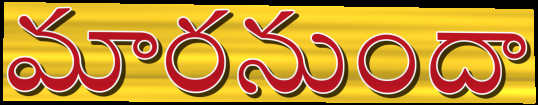
మారనుందా